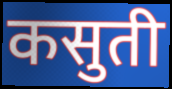
कसुती